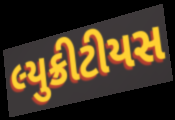
લ્યુક્રીટીયસ